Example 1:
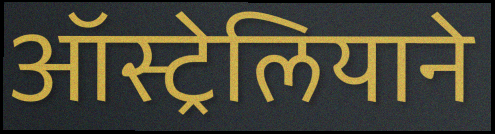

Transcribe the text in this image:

ऑस्ट्रेलियाने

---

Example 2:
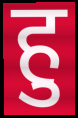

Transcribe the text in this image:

हु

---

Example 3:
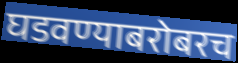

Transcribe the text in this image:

घडवण्याबरोबरच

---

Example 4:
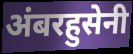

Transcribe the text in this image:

अंबरहुसेनी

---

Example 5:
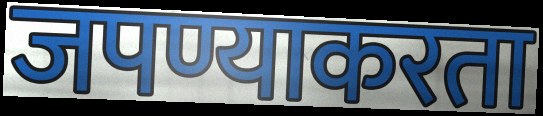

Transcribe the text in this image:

जपण्याकरता